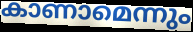
കാണാമെന്നും